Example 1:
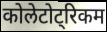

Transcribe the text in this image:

कोलेटोट्रिकम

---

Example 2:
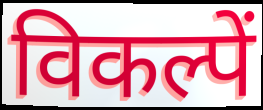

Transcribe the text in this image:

विकल्पें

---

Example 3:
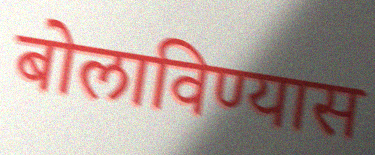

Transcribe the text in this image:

बोलाविण्यास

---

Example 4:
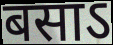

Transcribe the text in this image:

बसाऽ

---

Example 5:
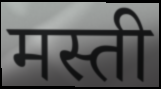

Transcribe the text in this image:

मस्ती